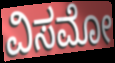
ವಿಸಮೋ